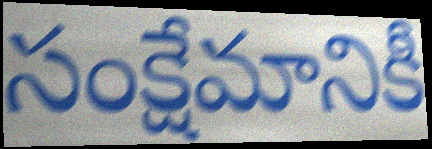
సంక్షేమానికీ